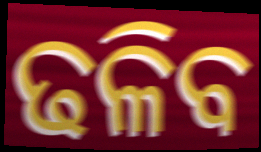
ଢଳିବ